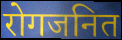
रोगजनित